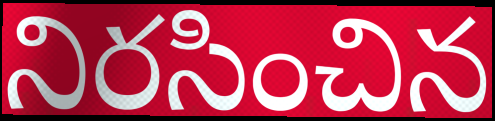
నిరసించిన